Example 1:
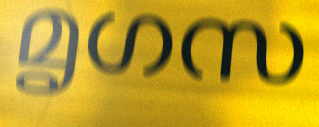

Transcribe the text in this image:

മൃഗസ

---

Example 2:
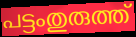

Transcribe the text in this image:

പട്ടംതുരുത്ത്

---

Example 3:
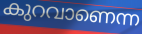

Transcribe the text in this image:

കുറവാണെന്ന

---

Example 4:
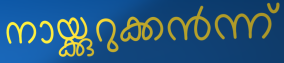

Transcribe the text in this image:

നായ്ക്കുറുക്കൻന്ന്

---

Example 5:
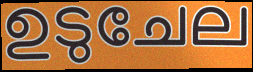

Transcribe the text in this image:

ഉടുചേല